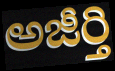
అజీర్తి